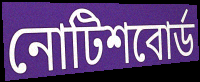
নোটিশবোর্ড